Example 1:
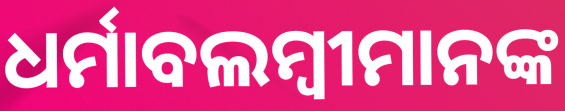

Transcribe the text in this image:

ଧର୍ମାବଲମ୍ବୀମାନଙ୍କ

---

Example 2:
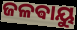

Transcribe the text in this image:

ଜଳଵାୟୁ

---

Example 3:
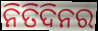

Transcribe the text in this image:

ନିତିଦିନର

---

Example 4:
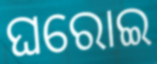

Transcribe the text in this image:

ଘରୋଇ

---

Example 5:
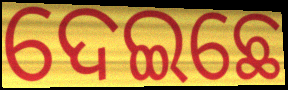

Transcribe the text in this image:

ଦେଇଛେ